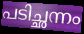
പടിച്ഛന്നം